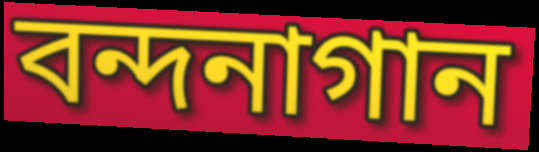
বন্দনাগান